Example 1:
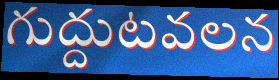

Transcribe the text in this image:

గుద్దుటవలన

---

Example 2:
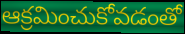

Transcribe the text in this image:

ఆక్రమించుకోవడంతో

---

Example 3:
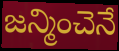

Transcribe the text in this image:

జన్మించెనే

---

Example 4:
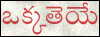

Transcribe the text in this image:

ఒక్కతెయే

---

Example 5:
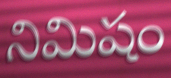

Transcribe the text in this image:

నిమిషం